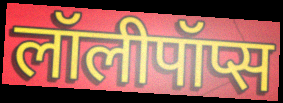
लॉलीपॉप्स